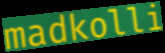
madkolli